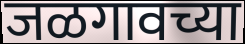
जळगावच्या